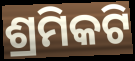
ଶ୍ରମିକଟି